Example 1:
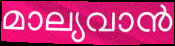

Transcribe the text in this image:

മാല്യവാൻ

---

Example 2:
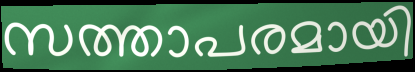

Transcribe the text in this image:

സത്താപരമായി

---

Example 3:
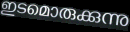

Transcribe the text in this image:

ഇടമൊരുക്കുന്നു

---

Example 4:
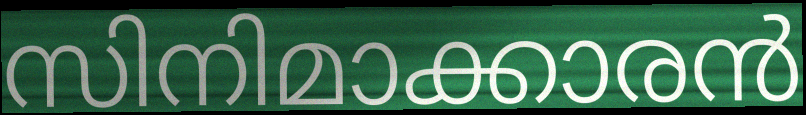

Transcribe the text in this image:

സിനിമാക്കാരൻ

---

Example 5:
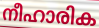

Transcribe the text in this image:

നീഹാരിക